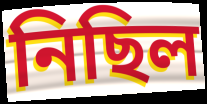
নিছিল